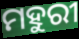
ମହୁରୀ